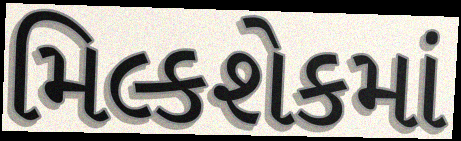
મિલ્કશેકમાં